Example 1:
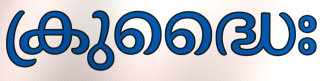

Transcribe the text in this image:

ക്രുദ്ധൈഃ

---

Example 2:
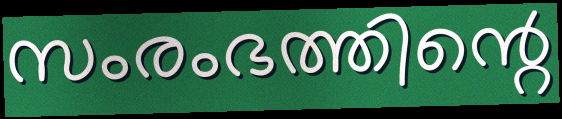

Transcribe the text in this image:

സംരംഭത്തിന്റെ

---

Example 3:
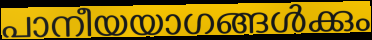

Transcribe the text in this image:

പാനീയയാഗങ്ങൾക്കും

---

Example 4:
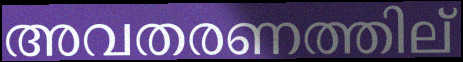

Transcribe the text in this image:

അവതരണത്തില്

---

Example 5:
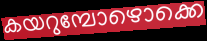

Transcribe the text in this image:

കയറുമ്പോഴൊക്കെ